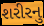
શરીરનુ